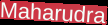
Maharudra